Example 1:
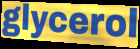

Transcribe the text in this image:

glycerol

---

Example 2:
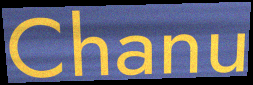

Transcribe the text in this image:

Chanu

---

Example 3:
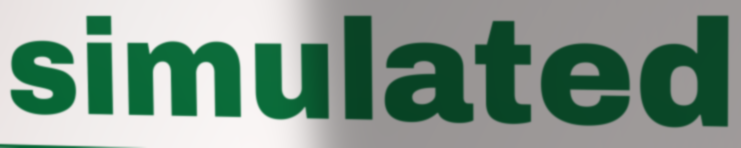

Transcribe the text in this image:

simulated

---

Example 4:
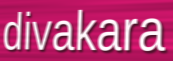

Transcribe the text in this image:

divakara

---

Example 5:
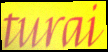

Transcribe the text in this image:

turai